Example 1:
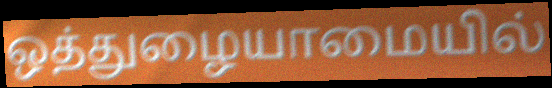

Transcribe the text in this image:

ஒத்துழையாமையில்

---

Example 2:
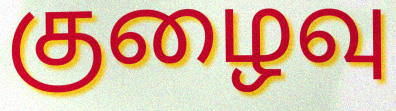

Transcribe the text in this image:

குழைவு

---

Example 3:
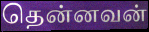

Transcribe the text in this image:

தென்னவன்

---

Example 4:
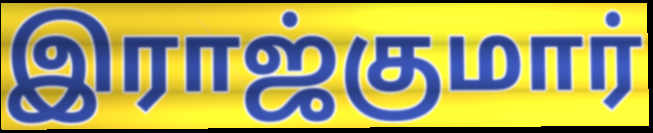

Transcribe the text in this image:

இராஜ்குமார்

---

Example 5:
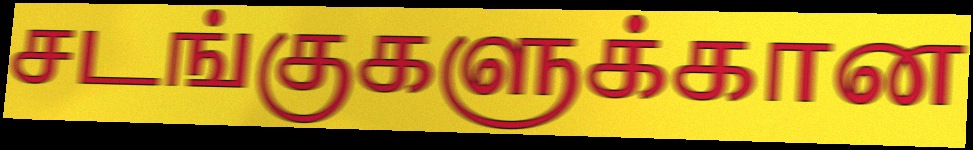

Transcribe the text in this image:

சடங்குகளுக்கான